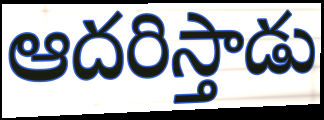
ఆదరిస్తాడు